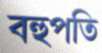
বহুপতি